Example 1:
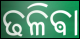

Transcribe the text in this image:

ଢଳିଵା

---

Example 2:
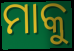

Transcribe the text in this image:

ମାକୁ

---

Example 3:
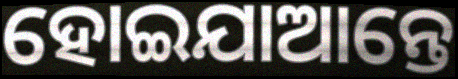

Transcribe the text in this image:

ହୋଇଯାଆନ୍ତେ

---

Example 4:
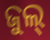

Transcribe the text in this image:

ଜୁଲ୍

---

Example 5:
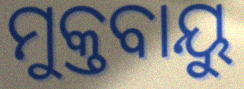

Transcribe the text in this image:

ମୁକ୍ତବାୟୁ